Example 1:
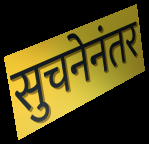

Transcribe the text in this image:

सुचनेनंतर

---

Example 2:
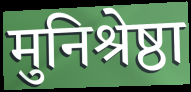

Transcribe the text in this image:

मुनिश्रेष्ठा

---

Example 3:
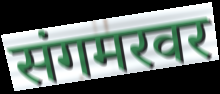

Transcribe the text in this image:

संगमरवर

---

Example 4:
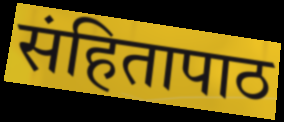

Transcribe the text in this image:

संहितापाठ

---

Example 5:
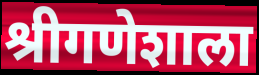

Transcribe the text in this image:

श्रीगणेशाला